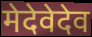
मेदेवेदेव